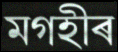
মগহীৰ